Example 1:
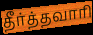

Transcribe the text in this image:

தீர்த்தவாரி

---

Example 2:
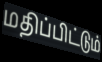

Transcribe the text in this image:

மதிப்பிட்டும்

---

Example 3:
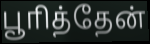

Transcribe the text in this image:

பூரித்தேன்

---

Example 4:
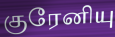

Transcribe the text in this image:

குரேனியு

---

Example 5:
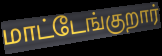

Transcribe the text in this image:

மாட்டேங்குறார்